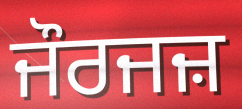
ਜੌਰਜਜ਼